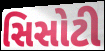
સિસોટી